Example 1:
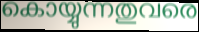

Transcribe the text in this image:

കൊയ്യുന്നതുവരെ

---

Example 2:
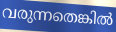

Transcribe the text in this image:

വരുന്നതെങ്കിൽ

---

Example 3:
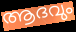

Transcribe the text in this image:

ആദവും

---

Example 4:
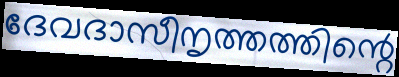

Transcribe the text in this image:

ദേവദാസീനൃത്തത്തിന്റെ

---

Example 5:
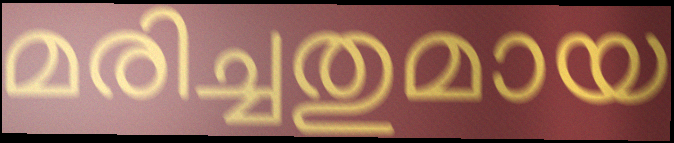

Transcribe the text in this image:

മരിച്ചതുമായ